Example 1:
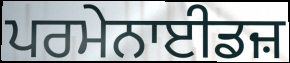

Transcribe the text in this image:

ਪਰਮੇਨਾਈਡਜ਼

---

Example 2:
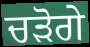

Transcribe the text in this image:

ਚੜੋਗੇ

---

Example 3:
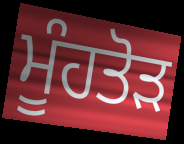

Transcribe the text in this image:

ਮੂੰਹਤੋੜ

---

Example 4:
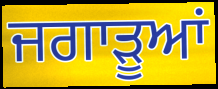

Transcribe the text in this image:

ਜਗਾੜੂਆਂ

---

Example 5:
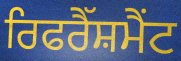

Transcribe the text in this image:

ਰਿਫਰੈੱਸ਼ਮੈਂਟ